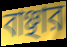
বাঞ্ছার